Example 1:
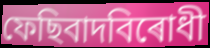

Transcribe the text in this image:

ফেছিবাদবিৰোধী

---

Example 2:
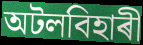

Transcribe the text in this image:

অটলবিহাৰী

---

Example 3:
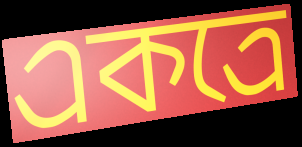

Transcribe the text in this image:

একত্ৰে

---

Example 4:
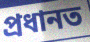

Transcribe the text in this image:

প্ৰধানত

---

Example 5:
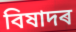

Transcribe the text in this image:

বিষাদৰ